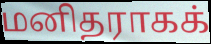
மனிதராகக்